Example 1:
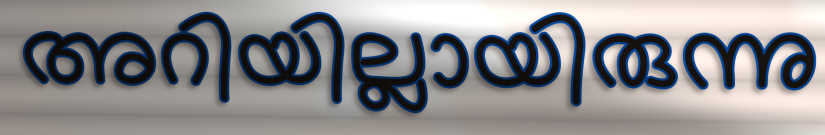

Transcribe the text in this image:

അറിയില്ലായിരുന്നു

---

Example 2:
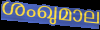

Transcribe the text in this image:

ശംഖുമാല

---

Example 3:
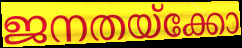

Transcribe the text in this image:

ജനതയ്ക്കോ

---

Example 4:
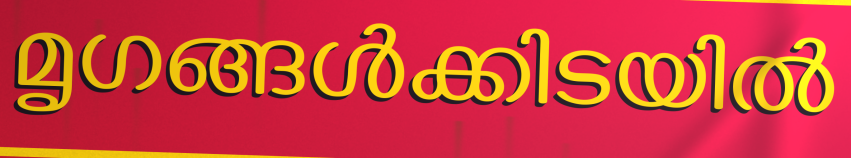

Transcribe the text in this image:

മൃഗങ്ങൾക്കിടയിൽ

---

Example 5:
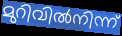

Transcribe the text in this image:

മുറിവിൽനിന്ന്